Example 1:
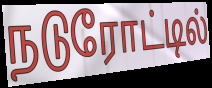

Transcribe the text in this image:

நடுரோட்டில்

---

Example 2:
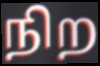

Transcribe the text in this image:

நிற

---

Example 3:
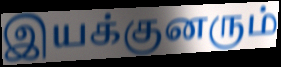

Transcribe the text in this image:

இயக்குனரும்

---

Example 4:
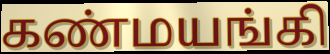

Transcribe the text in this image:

கண்மயங்கி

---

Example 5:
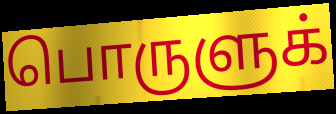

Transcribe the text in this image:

பொருளுக்